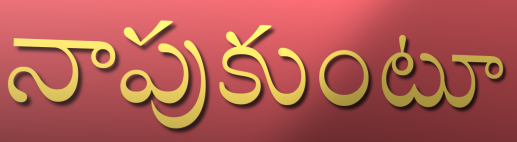
నాపుకుంటూ